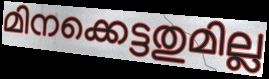
മിനക്കെട്ടതുമില്ല